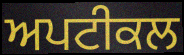
ਅਪਟੀਕਲ